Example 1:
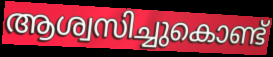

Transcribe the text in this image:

ആശ്വസിച്ചുകൊണ്ട്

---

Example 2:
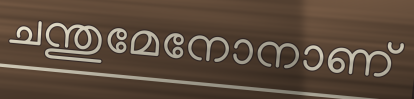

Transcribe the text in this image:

ചന്തുമേനോനാണ്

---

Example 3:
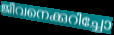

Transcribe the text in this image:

ജീവനെക്കുറിച്ചോ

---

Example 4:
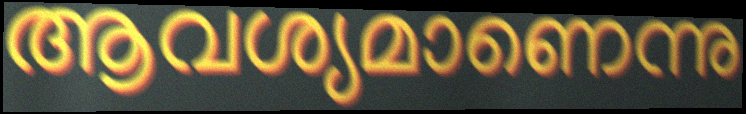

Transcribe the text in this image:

ആവശ്യമാണെന്നു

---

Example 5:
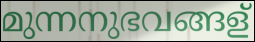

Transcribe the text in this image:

മുന്നനുഭവങ്ങള്